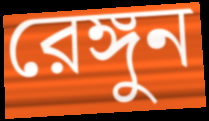
রেঙ্গুন